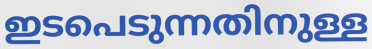
ഇടപെടുന്നതിനുള്ള